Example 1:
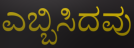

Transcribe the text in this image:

ಎಬ್ಬಿಸಿದವು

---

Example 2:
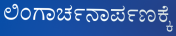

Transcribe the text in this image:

ಲಿಂಗಾರ್ಚನಾರ್ಪಣಕ್ಕೆ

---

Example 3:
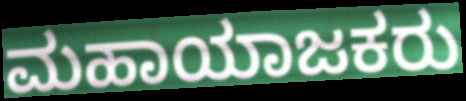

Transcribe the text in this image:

ಮಹಾಯಾಜಕರು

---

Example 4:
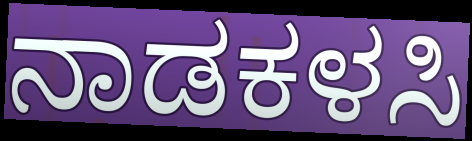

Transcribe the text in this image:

ನಾಡಕಳಸಿ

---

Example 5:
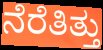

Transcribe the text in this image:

ನೆರೆತಿತ್ತು